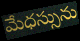
మేధస్సును